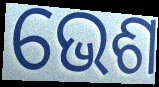
ଭେଶ